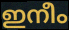
ഇനീം